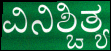
ವಿನಿಶ್ಚಿತ್ಯ